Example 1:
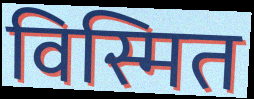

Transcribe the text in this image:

विस्मित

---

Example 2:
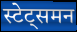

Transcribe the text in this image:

स्टेट्समन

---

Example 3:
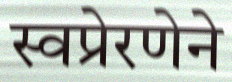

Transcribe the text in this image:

स्वप्रेरणेने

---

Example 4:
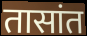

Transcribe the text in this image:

तासांत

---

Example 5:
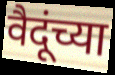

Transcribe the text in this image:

वैदूंच्या